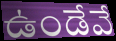
ఉండేవే